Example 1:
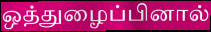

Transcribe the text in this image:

ஒத்துழைப்பினால்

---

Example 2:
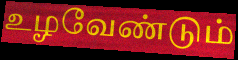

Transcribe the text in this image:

உழவேண்டும்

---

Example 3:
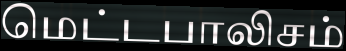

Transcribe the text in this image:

மெட்டபாலிசம்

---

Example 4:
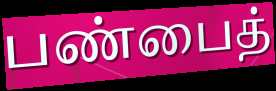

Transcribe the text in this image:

பண்பைத்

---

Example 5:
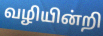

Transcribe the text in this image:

வழியின்றி